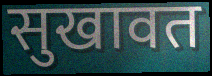
सुखावत